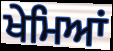
ਖੇਮਿਆਂ